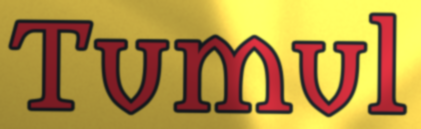
Tumul